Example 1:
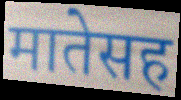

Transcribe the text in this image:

मातेसह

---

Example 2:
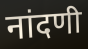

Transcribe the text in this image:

नांदणी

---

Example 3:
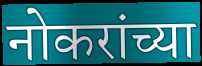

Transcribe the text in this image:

नोकरांच्या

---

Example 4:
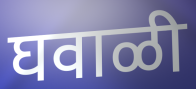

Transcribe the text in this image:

घवाळी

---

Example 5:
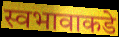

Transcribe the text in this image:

स्वभावाकडे